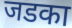
जडका